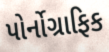
પોર્નોગ્રાફિક